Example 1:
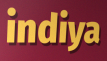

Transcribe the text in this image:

indiya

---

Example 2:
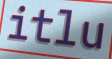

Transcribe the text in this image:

itlu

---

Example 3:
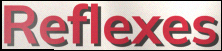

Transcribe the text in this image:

Reflexes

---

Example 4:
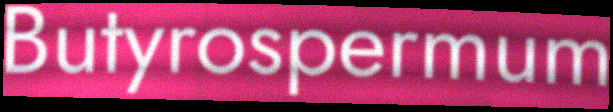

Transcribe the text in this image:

Butyrospermum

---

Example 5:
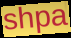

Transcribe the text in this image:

shpa